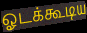
ஓடக்கூடிய